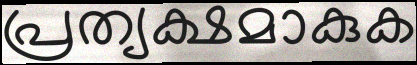
പ്രത്യക്ഷമാകുക